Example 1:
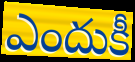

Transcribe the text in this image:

ఎందుకీ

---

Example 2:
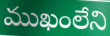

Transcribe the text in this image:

ముఖంలేని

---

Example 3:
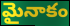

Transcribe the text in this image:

మైనాకం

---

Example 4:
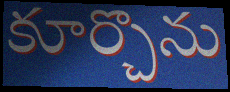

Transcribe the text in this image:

కూర్చొను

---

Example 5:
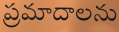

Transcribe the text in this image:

ప్రమాదాలను